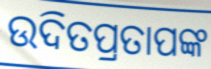
ଉଦିତପ୍ରତାପଙ୍କ